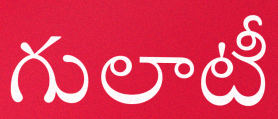
గులాటీ